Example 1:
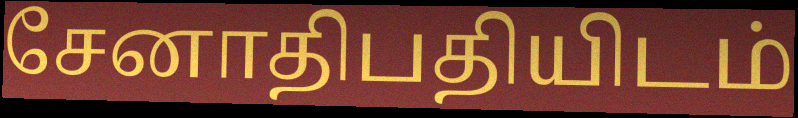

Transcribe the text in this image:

சேனாதிபதியிடம்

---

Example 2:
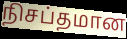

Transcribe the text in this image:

நிசப்தமான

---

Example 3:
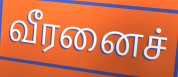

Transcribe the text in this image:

வீரனைச்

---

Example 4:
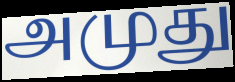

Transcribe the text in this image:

அமுது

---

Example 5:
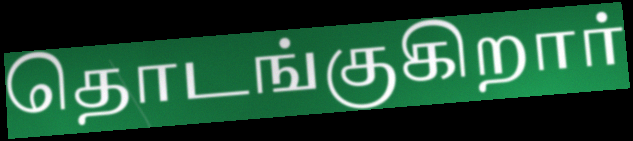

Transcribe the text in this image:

தொடங்குகிறார்